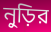
নুড়ির